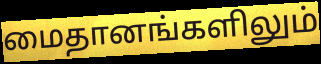
மைதானங்களிலும்